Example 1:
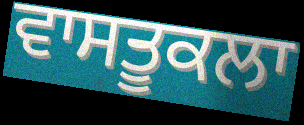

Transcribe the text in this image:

ਵਾਸਤੂਕਲਾ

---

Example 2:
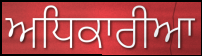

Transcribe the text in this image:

ਅਧਿਕਾਰੀਆ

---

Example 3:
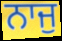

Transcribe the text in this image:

ਨਾਜੁ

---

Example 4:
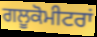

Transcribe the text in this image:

ਗਲੂਕੋਮੀਟਰਾਂ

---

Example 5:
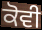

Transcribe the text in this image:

ਕੋਵੀ